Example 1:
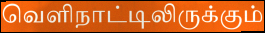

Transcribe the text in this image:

வெளிநாட்டிலிருக்கும்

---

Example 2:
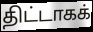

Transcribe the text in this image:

திட்டாகக்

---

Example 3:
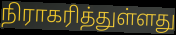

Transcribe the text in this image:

நிராகரித்துள்ளது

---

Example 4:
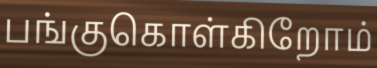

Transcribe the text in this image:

பங்குகொள்கிறோம்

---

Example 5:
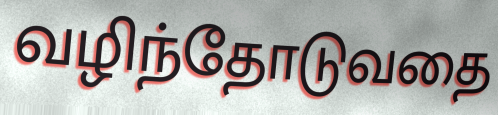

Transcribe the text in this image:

வழிந்தோடுவதை